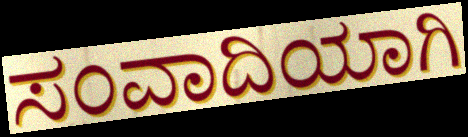
ಸಂವಾದಿಯಾಗಿ